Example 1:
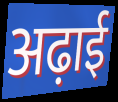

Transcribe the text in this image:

अढ़ाई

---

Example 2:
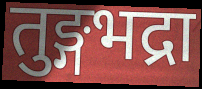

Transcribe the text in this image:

तुङ्गभद्रा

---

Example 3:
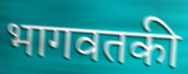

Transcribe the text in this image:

भागवतकी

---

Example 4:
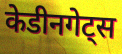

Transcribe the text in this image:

केडीनगेट्स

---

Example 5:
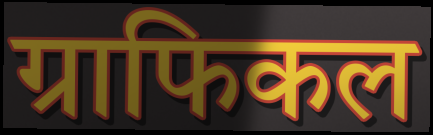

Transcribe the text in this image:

ग्राफिकल